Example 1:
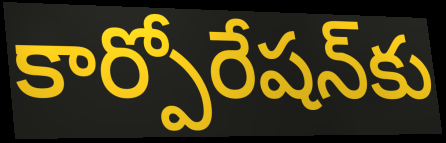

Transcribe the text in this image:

కార్పోరేషన్‌కు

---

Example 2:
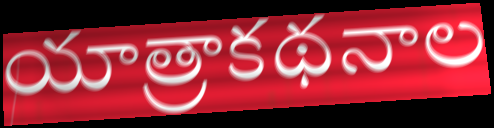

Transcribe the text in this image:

యాత్రాకథనాల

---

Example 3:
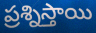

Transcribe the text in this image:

ప్రశ్నిస్తాయి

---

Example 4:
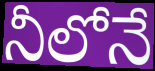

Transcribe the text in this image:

నీలోనే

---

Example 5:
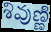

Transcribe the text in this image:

శివుణ్ణి